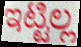
ಇಟ್ಟಿಲ್ಲ